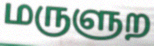
மருளுற